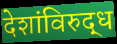
देशांविरुद्ध